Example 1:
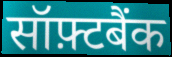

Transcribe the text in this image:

सॉफ़्टबैंक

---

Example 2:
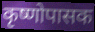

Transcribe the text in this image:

कृष्णोपासक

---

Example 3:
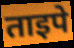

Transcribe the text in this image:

ताइपे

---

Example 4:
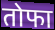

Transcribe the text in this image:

तोफा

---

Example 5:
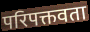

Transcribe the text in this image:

परिपक्तवता